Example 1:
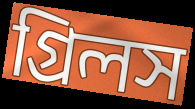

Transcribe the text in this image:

গ্রিলস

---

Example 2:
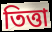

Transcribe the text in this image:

তিত্তা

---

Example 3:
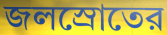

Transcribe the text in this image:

জলস্রোতের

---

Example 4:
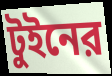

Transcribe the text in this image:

টুইনের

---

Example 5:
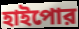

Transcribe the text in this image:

হাইপোর